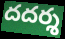
దదర్శ